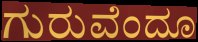
ಗುರುವೆಂದೂ